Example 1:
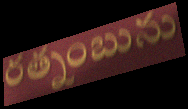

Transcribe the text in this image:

రత్నంబును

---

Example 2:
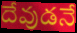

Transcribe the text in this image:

దేవుడనే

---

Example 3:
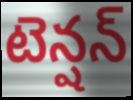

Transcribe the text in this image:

టెన్షన్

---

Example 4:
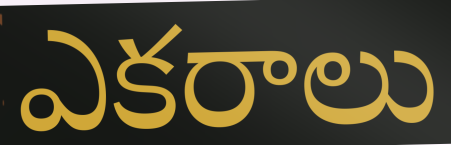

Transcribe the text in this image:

ఎకరాలు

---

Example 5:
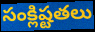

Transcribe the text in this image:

సంక్లిష్టతలు